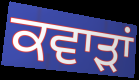
ਕਵਾੜਾਂ